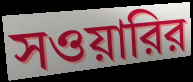
সওয়ারির